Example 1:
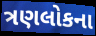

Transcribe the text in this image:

ત્રણલોકના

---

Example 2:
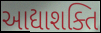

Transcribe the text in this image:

આદ્યાશક્તિ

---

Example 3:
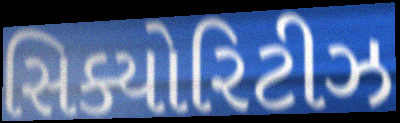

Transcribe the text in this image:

સિક્યોરિટીઝ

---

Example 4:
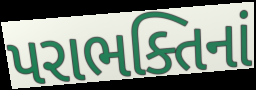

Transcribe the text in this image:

પરાભક્તિનાં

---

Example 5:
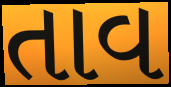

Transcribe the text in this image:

તાવ